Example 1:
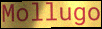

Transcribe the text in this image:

Mollugo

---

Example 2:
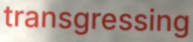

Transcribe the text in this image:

transgressing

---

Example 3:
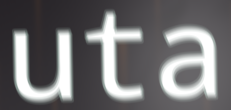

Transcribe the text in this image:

uta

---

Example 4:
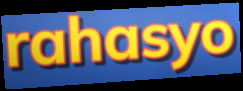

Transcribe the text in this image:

rahasyo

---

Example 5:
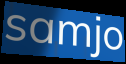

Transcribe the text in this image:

samjo